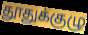
தூதுக்குழு